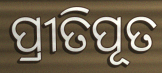
ପ୍ରୀତିପୂତ